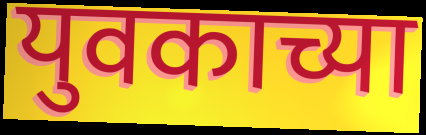
युवकाच्या